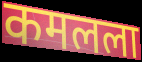
कमलला